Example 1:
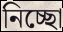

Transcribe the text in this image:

নিচ্ছো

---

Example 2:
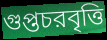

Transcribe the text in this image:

গুপ্তচরবৃত্তি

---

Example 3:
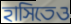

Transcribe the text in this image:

হাসিতেও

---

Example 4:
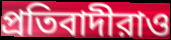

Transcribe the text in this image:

প্রতিবাদীরাও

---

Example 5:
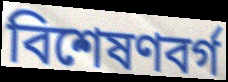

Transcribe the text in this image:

বিশেষণবর্গ